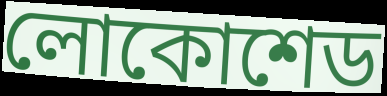
লোকোশেড